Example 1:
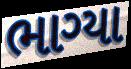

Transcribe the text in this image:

ભાગ્યા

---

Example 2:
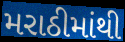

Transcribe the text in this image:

મરાઠીમાંથી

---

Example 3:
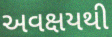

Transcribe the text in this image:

અવક્ષયથી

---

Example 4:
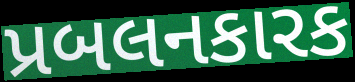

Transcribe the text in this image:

પ્રબલનકારક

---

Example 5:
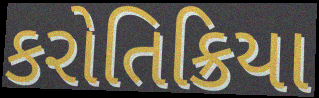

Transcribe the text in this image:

કરોતિક્રિયા